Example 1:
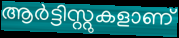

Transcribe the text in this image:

ആർട്ടിസ്റ്റുകളാണ്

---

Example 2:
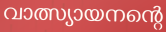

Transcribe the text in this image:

വാത്സ്യായനന്റെ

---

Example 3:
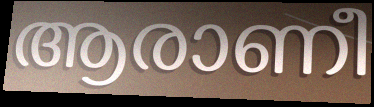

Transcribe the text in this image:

ആരാണീ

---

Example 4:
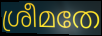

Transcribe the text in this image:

ശ്രീമതേ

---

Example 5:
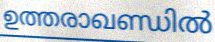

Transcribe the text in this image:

ഉത്തരാഖണ്ഡിൽ